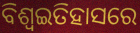
ବିଶ୍ଵଇତିହାସରେ